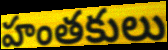
హంతకులు